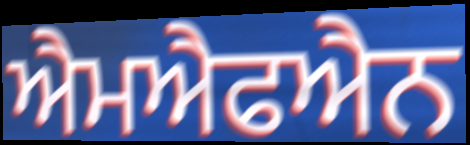
ਐਮਐਫਐਨ